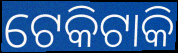
ଟେକିଟାକି